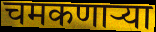
चमकणाऱ्या